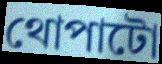
থোপাটো